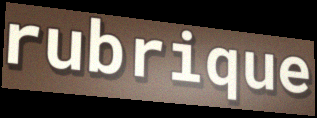
rubrique